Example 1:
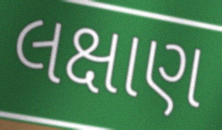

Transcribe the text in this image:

લક્ષાણ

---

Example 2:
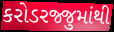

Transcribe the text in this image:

કરોડરજ્જુમાંથી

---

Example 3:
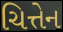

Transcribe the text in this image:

ચિત્તેન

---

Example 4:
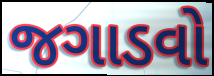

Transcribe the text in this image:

જગાડવો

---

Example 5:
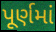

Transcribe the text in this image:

પૂર્ણમાં